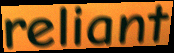
reliant